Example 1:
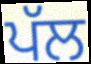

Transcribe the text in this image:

ਪੱਲ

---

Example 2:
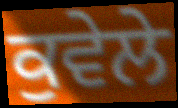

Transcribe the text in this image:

ਕੁਵੇਲੇ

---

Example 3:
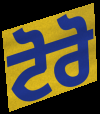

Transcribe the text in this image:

ਟੋਰੋ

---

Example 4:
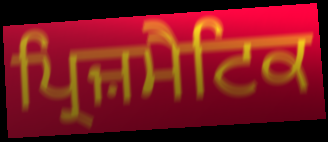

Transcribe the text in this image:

ਪ੍ਰਿਜ਼ਮੈਟਿਕ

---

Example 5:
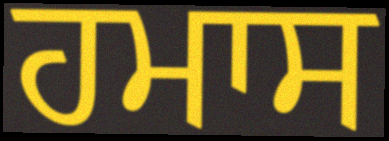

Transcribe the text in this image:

ਹਮਾਸ